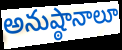
అనుష్ఠానాలూ